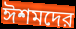
ঈশমদের